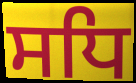
ਸਧਿ